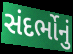
સંદર્ભોનું